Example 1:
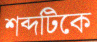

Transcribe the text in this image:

শব্দটিকে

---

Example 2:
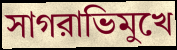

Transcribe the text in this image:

সাগরাভিমুখে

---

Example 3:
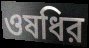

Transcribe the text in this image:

ওষধির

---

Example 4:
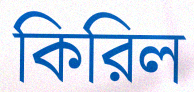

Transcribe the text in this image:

কিরিল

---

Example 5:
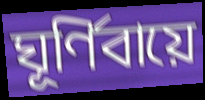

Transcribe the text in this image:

ঘূর্ণিবায়ে